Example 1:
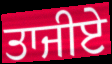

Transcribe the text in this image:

ਤਾਜੀਏ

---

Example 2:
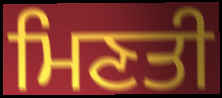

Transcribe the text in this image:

ਮਿਣਤੀ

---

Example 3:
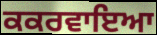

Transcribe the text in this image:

ਕਕਰਵਾਇਆ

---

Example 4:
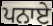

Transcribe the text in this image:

ਪਨਾਏ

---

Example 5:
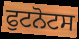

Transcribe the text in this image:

ਫੁਟਨੋਟਸ